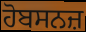
ਹੋਬਸਨਜ਼